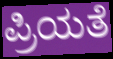
ಪ್ರಿಯತೆ